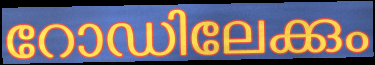
റോഡിലേക്കും